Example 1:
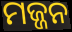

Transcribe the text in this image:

ମଜ୍ଜନ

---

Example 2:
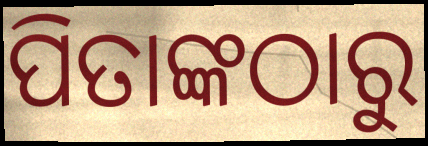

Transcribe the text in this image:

ପିତାଙ୍କଠାରୁ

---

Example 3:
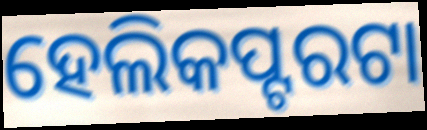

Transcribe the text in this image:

ହେଲିକପ୍ଟରଟା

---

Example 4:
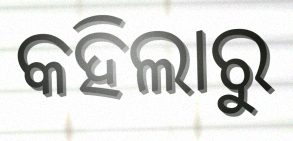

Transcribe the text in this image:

କହିଲାରୁ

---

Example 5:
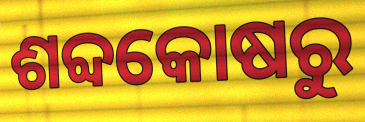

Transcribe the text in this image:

ଶବ୍ଦକୋଷରୁ